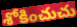
శోకించుచు